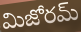
మిజోరమ్